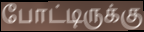
போட்டிருக்கு